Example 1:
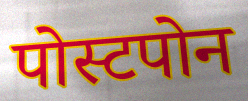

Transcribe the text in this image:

पोस्टपोन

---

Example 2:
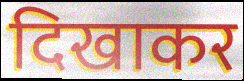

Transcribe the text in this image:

दिखाकर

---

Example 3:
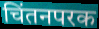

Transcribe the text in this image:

चिंतनपरक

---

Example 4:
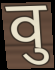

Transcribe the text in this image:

वु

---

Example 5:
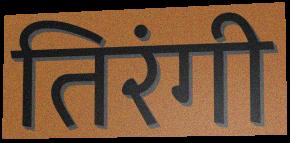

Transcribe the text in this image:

तिरंगी